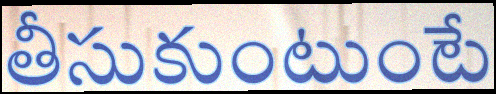
తీసుకుంటుంటే